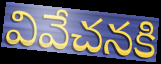
వివేచనకి